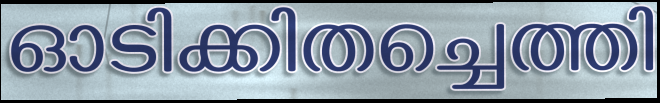
ഓടിക്കിതച്ചെത്തി